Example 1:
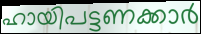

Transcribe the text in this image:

ഹായിപട്ടണക്കാർ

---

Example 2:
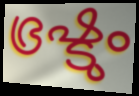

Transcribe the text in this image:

ഭ്രഷ്ടും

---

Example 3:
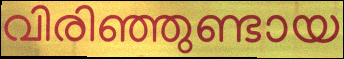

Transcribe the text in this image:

വിരിഞ്ഞുണ്ടായ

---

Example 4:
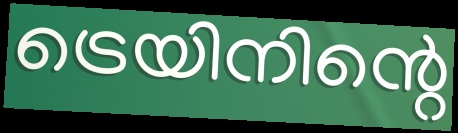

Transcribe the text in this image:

ട്രെയിനിന്റെ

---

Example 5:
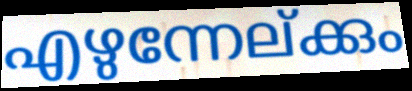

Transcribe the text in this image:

എഴുന്നേല്ക്കും